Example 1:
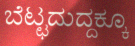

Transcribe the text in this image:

ಬೆಟ್ಟದುದ್ದಕ್ಕೂ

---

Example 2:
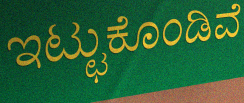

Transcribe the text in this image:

ಇಟ್ಟುಕೊಂಡಿವೆ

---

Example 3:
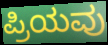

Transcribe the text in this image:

ಪ್ರಿಯವು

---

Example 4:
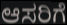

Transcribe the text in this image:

ಆಸರಿಗೆ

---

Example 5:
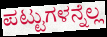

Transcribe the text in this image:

ಪಟ್ಟುಗಳನ್ನೆಲ್ಲ